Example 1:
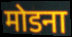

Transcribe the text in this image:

मोडना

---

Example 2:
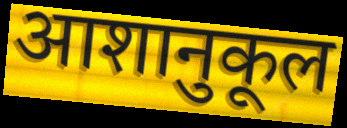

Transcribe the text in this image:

आशानुकूल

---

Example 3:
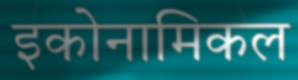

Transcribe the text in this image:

इकोनामिकल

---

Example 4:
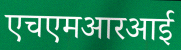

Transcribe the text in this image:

एचएमआरआई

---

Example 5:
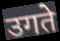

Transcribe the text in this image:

उगते